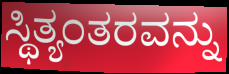
ಸ್ಥಿತ್ಯಂತರವನ್ನು